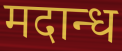
मदान्ध